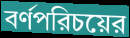
বর্ণপরিচয়ের